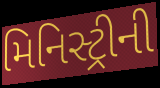
મિનિસ્ટ્રીની